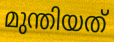
മുന്തിയത്